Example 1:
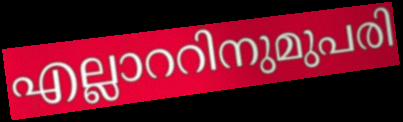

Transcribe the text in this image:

എല്ലാററിനുമുപരി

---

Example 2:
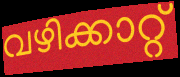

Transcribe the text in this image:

വഴിക്കാറ്റ്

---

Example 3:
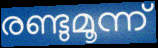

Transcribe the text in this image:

രണ്ടുമൂന്ന്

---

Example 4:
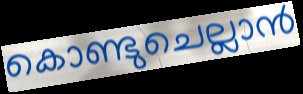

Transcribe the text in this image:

കൊണ്ടുചെല്ലാൻ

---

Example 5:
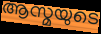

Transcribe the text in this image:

ആസ്മയുടെ